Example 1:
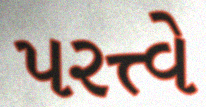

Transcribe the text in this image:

પરત્ત્વે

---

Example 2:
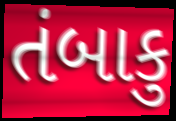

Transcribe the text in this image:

તંબાકુ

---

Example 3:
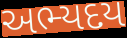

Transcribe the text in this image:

અભ્યદય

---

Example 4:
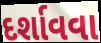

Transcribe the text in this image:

દર્શાવવા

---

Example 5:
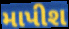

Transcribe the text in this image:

માપીશ